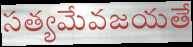
సత్యమేవజయతే